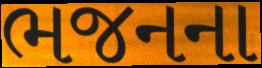
ભજનના